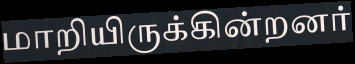
மாறியிருக்கின்றனர்